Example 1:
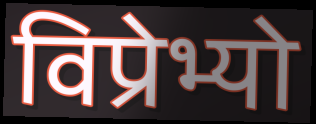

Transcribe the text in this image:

विप्रेभ्यो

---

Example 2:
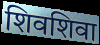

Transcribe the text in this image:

शिवशिवा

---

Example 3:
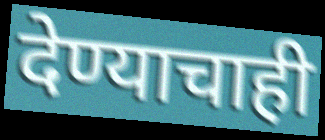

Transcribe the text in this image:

देण्याचाही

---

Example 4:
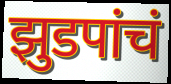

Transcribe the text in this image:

झुडपांचं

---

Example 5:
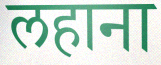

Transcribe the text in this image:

लहाना